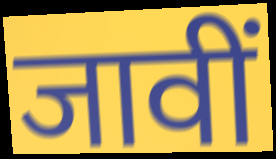
जावीं